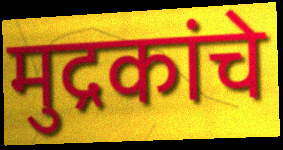
मुद्रकांचे